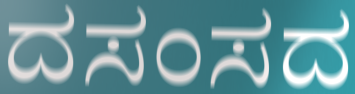
ದಸಂಸದ